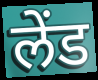
लेंड